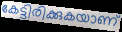
കേട്ടിരിക്കുകയാണ്